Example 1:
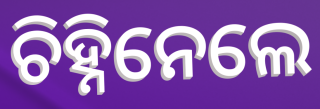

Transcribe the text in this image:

ଚିହ୍ନିନେଲେ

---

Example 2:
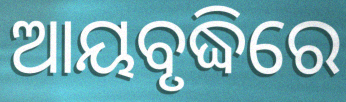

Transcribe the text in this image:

ଆୟବୃଦ୍ଧିରେ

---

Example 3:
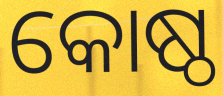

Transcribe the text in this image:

କୋଷ୍ଠ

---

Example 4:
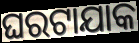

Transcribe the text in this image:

ଘରଟାଯାକ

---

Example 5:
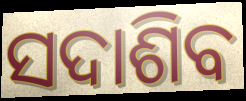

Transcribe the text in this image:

ସଦାଶିବ